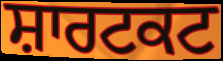
ਸ਼ਾਰਟਕਟ